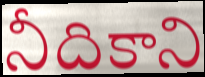
నీదికాని